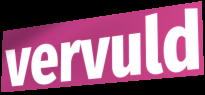
vervuld